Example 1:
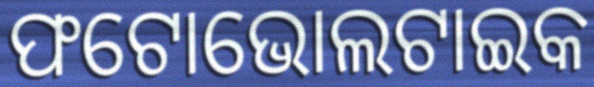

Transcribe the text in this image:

ଫଟୋଭୋଲଟାଇକ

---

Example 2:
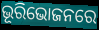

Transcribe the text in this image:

ଭୂରିଭୋଜନରେ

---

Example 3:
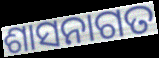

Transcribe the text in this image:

ଶାସନାଗତ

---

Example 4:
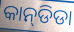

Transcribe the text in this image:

କାନ୍‌ଡିଡା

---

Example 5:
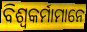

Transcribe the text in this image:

ବିଶ୍ଵକର୍ମାମାନେ